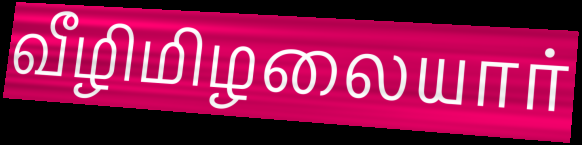
வீழிமிழலையார்